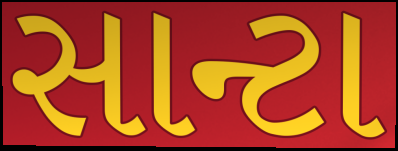
સાન્ટા